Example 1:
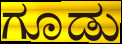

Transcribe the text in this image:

ಗೂಡು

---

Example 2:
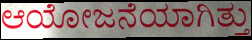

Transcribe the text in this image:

ಆಯೋಜನೆಯಾಗಿತ್ತು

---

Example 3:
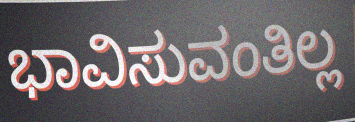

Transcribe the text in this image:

ಭಾವಿಸುವಂತಿಲ್ಲ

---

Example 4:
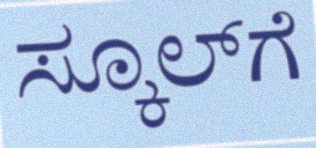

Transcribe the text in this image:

ಸ್ಕೂಲ್‌ಗೆ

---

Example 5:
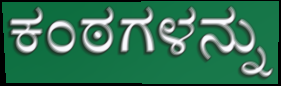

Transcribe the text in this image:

ಕಂಠಗಳನ್ನು